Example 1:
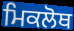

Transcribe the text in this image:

ਮਿਕਲੋਥ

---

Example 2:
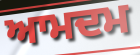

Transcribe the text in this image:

ਆਮਦਮ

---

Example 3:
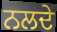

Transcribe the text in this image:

ਨਲਦੇ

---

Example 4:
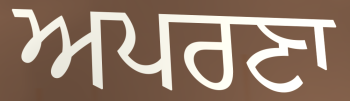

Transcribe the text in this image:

ਅਪਰਣਾ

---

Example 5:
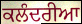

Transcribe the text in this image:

ਕਲੰਦਰੀਆ